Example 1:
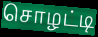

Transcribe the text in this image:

சொழட்டி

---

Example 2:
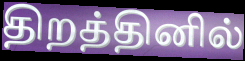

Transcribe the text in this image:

திறத்தினில்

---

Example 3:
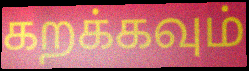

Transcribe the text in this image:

கறக்கவும்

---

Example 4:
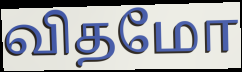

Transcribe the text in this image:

விதமோ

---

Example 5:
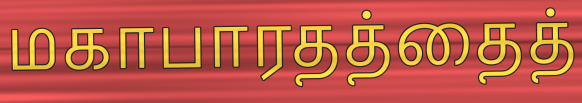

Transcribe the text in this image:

மகாபாரதத்தைத்